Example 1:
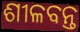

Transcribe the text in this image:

ଶୀଳବନ୍ତ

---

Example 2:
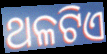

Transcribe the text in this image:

ଥଳଟିଏ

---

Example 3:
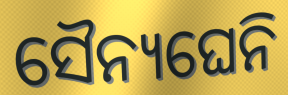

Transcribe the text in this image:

ସୈନ୍ୟଘେନି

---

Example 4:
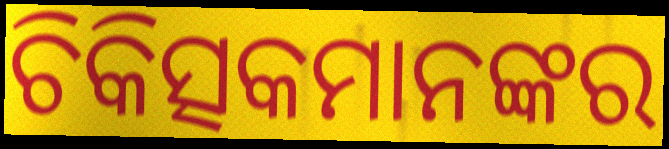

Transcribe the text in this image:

ଚିକିତ୍ସକମାନଙ୍କର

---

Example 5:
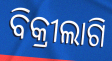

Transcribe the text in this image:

ବିକ୍ରୀଲାଗି